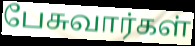
பேசுவார்கள்